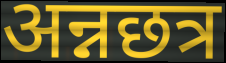
अन्नछत्र